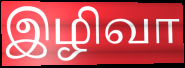
இழிவா